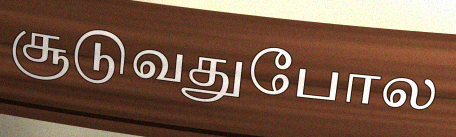
சூடுவதுபோல